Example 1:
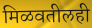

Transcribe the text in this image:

मिळवतीलही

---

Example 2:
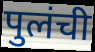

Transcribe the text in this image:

पुलंची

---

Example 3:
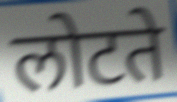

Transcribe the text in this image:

लोटते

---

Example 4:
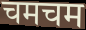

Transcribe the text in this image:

चमचम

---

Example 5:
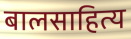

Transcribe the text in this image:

बालसाहित्य